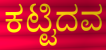
ಕಟ್ಟಿದವ